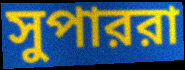
সুপাররা